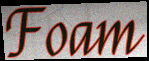
Foam